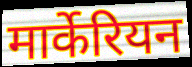
मार्केरियन